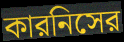
কারনিসের